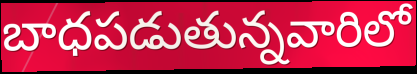
బాధపడుతున్నవారిలో